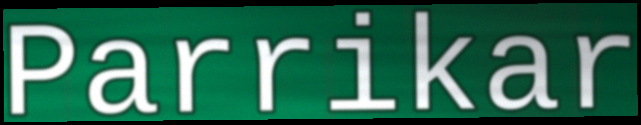
Parrikar